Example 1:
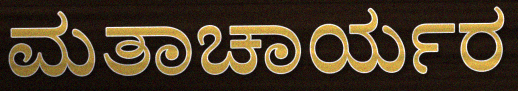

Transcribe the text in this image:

ಮತಾಚಾರ್ಯರ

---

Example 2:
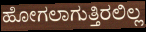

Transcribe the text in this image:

ಹೋಗಲಾಗುತ್ತಿರಲಿಲ್ಲ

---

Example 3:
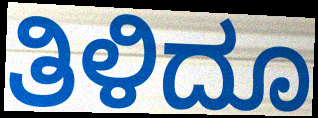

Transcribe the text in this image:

ತಿಳಿದೂ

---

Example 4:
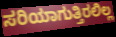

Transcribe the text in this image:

ಸರಿಯಾಗುತ್ತಿರಲಿಲ್ಲ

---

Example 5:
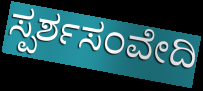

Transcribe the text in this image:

ಸ್ಪರ್ಶಸಂವೇದಿ